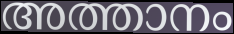
അത്താനം